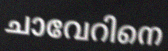
ചാവേറിനെ